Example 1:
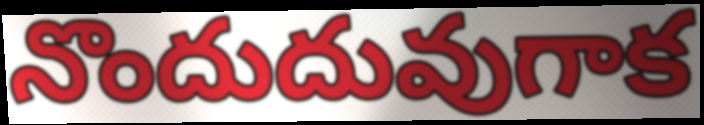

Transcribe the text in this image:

నొందుదువుగాక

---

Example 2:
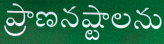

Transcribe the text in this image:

ప్రాణనష్టాలను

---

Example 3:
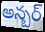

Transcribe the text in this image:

అన్బర్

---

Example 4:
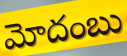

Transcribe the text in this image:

మోదంబు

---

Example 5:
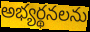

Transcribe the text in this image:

అభ్యర్థనలను